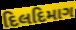
દિલદિમાગ